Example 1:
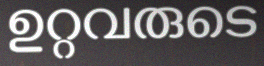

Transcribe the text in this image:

ഉറ്റവരുടെ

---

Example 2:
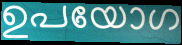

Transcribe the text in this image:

ഉപയോഗ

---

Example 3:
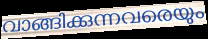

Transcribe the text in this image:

വാങ്ങിക്കുന്നവരെയും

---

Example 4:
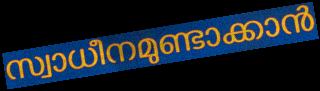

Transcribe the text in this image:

സ്വാധീനമുണ്ടാക്കാൻ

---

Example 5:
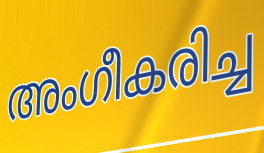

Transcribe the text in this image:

അംഗീകരിച്ച